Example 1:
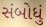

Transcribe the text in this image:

સંબોધું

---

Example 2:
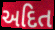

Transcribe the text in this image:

અદિત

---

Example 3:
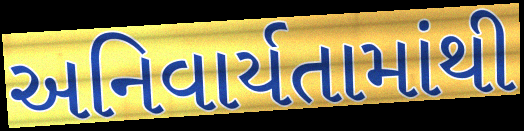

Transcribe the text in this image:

અનિવાર્યતામાંથી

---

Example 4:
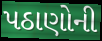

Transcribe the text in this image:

પઠાણોની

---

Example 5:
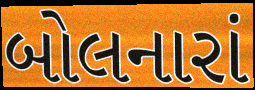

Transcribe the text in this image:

બોલનારાં